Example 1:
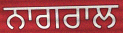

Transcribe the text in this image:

ਨਾਗਰਾਲ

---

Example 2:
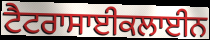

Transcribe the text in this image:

ਟੈਟਰਾਸਾਈਕਲਾਈਨ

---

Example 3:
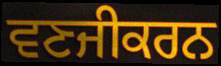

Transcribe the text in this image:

ਵਣਜੀਕਰਨ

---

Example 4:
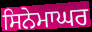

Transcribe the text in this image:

ਸਿਨੇਮਾਘਰ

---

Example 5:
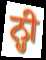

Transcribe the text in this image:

ਨ੍ਹੀ